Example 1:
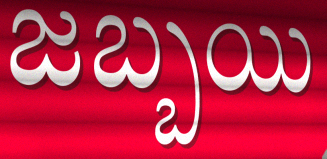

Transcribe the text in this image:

జబ్బయి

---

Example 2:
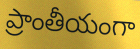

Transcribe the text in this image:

ప్రాంతీయంగా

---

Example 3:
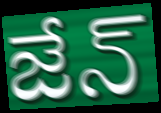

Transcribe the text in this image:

జేన్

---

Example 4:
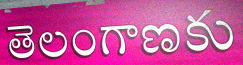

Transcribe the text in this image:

తెలంగాణకు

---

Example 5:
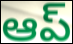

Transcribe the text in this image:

ఆప్